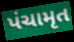
પંચામૃત